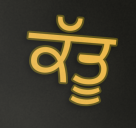
ਕੱਤੂ